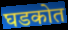
घडकोत